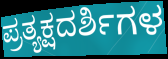
ಪ್ರತ್ಯಕ್ಷದರ್ಶಿಗಳ